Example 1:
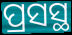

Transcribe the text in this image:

ପ୍ରସସ୍ଥ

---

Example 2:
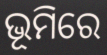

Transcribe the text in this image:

ଭୂମିରେ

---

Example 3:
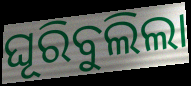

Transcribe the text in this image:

ଘୂରିବୁଲିଲା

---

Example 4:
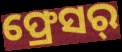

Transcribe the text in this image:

ଫ୍ରେସର୍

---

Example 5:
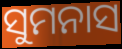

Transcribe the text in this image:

ସୁମନାସ